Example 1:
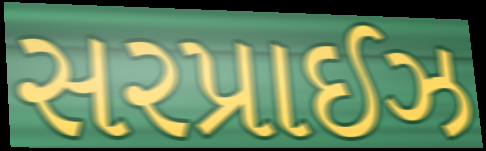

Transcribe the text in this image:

સરપ્રાઈઝ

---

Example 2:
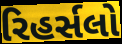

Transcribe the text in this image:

રિહર્સલો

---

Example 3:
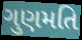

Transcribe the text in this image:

ગુણમતિ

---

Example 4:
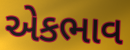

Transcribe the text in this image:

એકભાવ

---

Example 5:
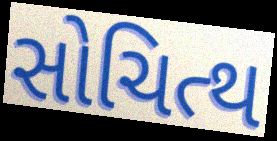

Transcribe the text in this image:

સોચિત્થ